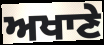
ਅਖਾਣੇ